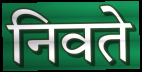
निवते